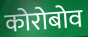
कोरोबोव